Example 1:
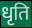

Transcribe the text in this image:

धृति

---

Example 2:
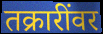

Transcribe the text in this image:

तक्रारींवर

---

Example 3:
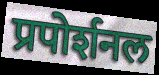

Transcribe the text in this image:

प्रपोर्शनल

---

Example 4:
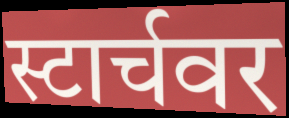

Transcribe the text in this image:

स्टार्चवर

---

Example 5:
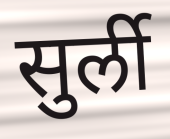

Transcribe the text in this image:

सुर्ली